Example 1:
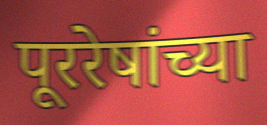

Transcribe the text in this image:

पूररेषांच्या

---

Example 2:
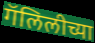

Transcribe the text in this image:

गॅलिलीच्या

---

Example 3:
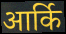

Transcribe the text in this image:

आर्कि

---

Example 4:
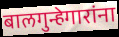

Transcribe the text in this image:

बालगुन्हेगारांना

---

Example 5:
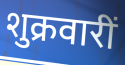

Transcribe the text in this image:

शुक्रवारीं